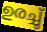
ഉരച്ചു്